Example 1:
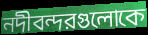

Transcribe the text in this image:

নদীবন্দরগুলোকে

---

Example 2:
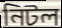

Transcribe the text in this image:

নিটল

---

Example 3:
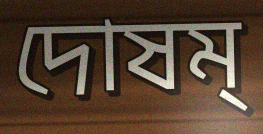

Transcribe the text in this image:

দোষম্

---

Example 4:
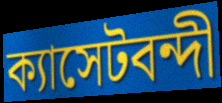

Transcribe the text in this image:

ক্যাসেটবন্দী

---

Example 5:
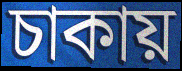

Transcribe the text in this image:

চাকায়